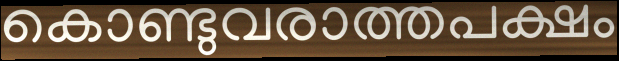
കൊണ്ടുവരാത്തപക്ഷം